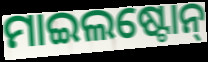
ମାଇଲଷ୍ଟୋନ୍